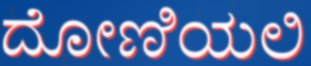
ದೋಣಿಯಲಿ